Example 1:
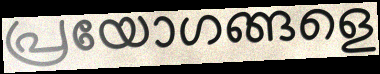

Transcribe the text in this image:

പ്രയോഗങ്ങളെ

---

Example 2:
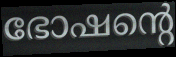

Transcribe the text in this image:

ഭോഷന്റെ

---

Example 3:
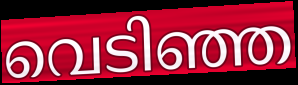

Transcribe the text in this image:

വെടിഞ്ഞ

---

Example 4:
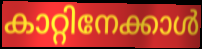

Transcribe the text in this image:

കാറ്റിനേക്കാൾ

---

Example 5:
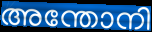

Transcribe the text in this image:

അന്തോനി